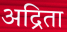
अद्रिता